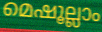
മെഷൂല്ലാം